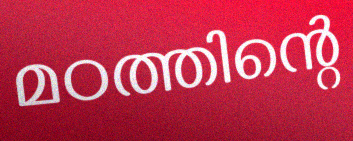
മഠത്തിന്റെ